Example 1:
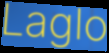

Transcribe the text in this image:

Laglo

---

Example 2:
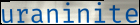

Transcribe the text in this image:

uraninite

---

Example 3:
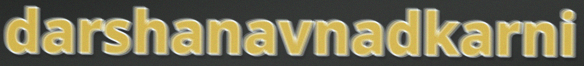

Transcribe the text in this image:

darshanavnadkarni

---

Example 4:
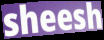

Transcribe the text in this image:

sheesh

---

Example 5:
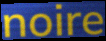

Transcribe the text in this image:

noire